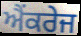
ਐਂਕਰੇਜ